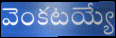
వెంకటయ్యే